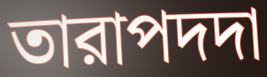
তারাপদদা